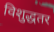
विशुद्धतर